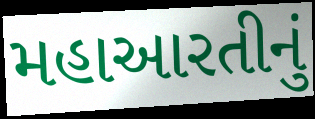
મહાઆરતીનું